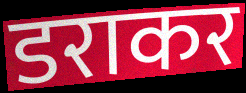
डराकर